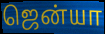
ஜென்யா